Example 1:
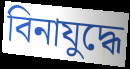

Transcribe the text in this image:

বিনাযুদ্ধে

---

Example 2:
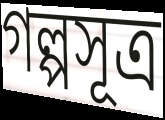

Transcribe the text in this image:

গল্পসূত্র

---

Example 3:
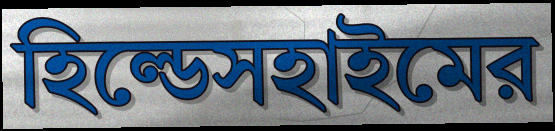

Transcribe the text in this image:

হিল্ডেসহাইমের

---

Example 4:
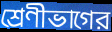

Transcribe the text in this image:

শ্রেণীভাগের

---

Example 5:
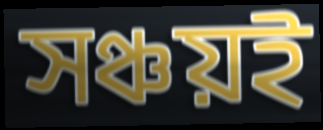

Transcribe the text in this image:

সঞ্চয়ই